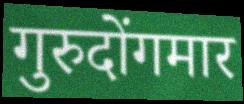
गुरुदोंगमार